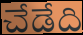
చేడేది